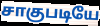
சாகுபடியே